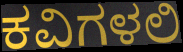
ಕವಿಗಳಲಿ